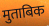
मुताबिक